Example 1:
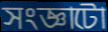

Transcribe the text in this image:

সংজ্ঞাটো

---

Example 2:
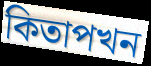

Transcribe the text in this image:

কিতাপখন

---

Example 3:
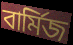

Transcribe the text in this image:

বাৰ্মিজ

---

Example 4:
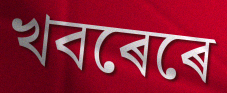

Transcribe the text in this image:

খবৰেৰে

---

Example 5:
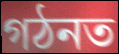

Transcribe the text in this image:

গঠনত